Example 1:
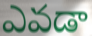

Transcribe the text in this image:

ఎవడా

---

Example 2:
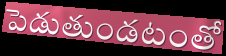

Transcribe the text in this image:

పెడుతుండటంతో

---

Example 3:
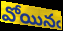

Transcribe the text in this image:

వోయినఁ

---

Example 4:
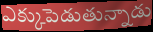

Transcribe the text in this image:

ఎక్కుపెడుతున్నాడు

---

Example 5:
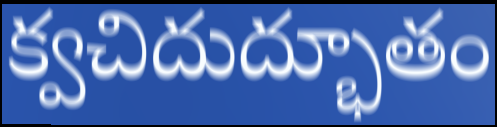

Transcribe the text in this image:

క్వచిదుద్భూతం